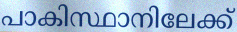
പാകിസ്ഥാനിലേക്ക്